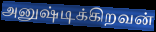
அனுஷ்டிக்கிறவன்